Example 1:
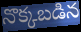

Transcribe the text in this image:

నొక్కబడిన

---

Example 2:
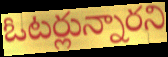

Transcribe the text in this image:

ఓటర్లున్నారని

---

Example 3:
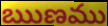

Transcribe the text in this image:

ఋణము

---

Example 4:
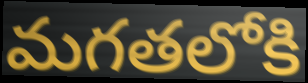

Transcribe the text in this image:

మగతలోకి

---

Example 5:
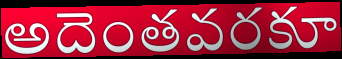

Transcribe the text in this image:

అదెంతవరకూ